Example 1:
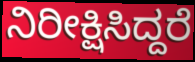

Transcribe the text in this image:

ನಿರೀಕ್ಷಿಸಿದ್ದರೆ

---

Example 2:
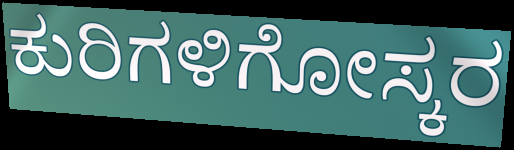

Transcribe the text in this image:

ಕುರಿಗಳಿಗೋಸ್ಕರ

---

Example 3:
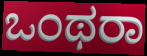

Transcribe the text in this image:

ಒಂಥರಾ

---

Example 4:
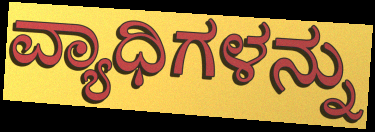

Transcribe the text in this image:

ವ್ಯಾಧಿಗಳನ್ನು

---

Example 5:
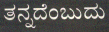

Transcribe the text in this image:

ತನ್ನದೆಂಬುದು